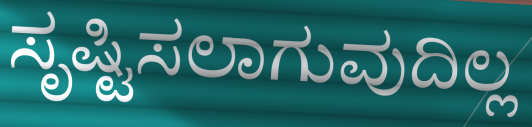
ಸೃಷ್ಟಿಸಲಾಗುವುದಿಲ್ಲ